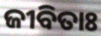
ଜୀବିତାଃ